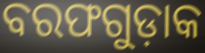
ବରଫଗୁଡ଼ାକ